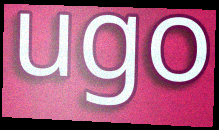
ugo